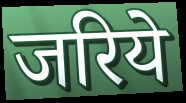
जरिये